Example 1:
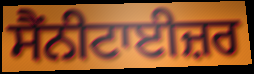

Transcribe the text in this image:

ਸੈਂਨੀਟਾਈਜ਼ਰ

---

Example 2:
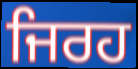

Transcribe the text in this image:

ਜਿਰਹ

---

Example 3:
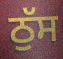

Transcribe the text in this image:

ਠੁੱਸ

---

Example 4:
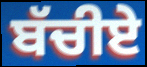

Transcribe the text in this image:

ਬੱਚੀਏ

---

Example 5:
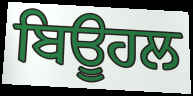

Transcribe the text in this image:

ਬਿਊਹਲ